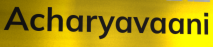
Acharyavaani